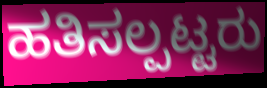
ಹತಿಸಲ್ಪಟ್ಟರು